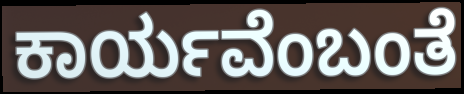
ಕಾರ್ಯವೆಂಬಂತೆ